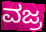
ವಜ್ರ